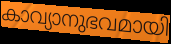
കാവ്യാനുഭവമായി